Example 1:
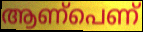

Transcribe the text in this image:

ആണ്പെണ്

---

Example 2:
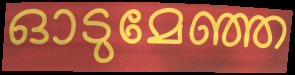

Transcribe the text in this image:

ഓടുമേഞ്ഞ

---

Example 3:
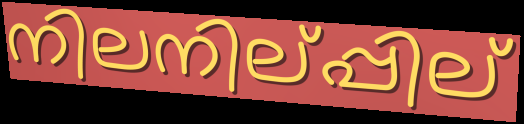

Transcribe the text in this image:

നിലനില്പ്പില്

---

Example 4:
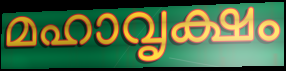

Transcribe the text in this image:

മഹാവൃക്ഷം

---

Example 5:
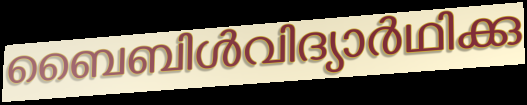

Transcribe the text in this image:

ബൈബിൾവിദ്യാർഥിക്കു